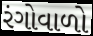
રંગોવાળો